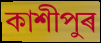
কাশীপুৰ